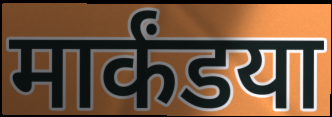
मार्कंडया